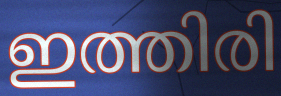
ഇത്തിരി